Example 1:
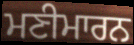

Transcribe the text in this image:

ਮਣੀਮਾਰਨ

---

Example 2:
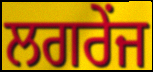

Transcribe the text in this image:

ਲਗਰੇਂਜ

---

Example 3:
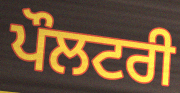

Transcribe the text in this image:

ਪੌਲਟਰੀ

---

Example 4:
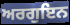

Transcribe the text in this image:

ਅਰਗੁਇਨ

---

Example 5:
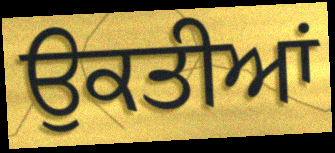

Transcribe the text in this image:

ਉਕਤੀਆਂ